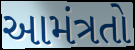
આમંત્રતો